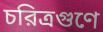
চরিত্রগুণে